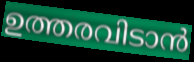
ഉത്തരവിടാൻ